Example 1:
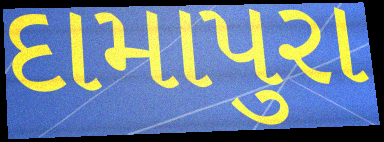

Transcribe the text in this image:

દામાપુરા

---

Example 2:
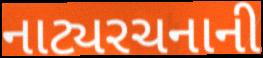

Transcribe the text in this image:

નાટ્યરચનાની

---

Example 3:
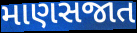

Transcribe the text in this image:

માણસજાત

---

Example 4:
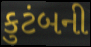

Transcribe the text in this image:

કુટંબની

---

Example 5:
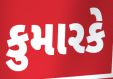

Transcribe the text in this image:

કુમારકે